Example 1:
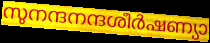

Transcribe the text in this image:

സുനന്ദനന്ദശീർഷണ്യാ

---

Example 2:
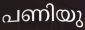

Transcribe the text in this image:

പണിയു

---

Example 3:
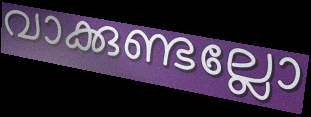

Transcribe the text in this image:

വാക്കുണ്ടല്ലോ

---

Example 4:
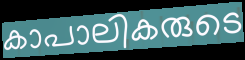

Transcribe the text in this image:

കാപാലികരുടെ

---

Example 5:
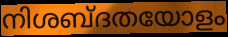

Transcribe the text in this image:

നിശബ്ദതയോളം